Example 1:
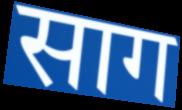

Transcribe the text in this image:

साग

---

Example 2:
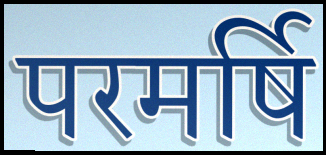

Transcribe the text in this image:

परमर्षि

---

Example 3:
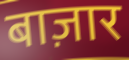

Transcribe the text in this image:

बाज़ार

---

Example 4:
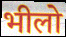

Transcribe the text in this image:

भीलो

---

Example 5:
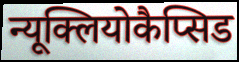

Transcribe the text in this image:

न्यूक्लियोकैप्सिड